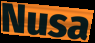
Nusa